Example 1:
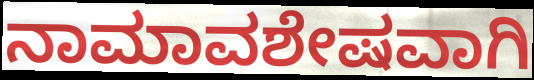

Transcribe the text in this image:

ನಾಮಾವಶೇಷವಾಗಿ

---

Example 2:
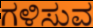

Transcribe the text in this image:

ಗಳಿಸುವ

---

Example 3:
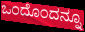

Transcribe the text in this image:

ಒಂದೊಂದನ್ನೂ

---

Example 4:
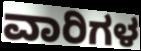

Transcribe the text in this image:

ವಾರಿಗಳ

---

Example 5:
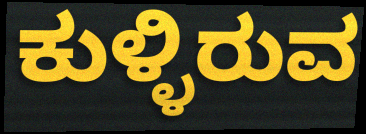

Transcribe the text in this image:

ಕುಳ್ಳಿರುವ